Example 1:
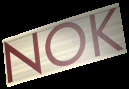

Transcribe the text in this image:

NOK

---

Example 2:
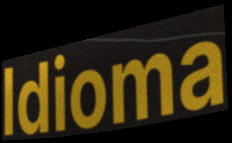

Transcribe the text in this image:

Idioma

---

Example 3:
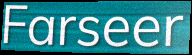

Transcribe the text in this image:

Farseer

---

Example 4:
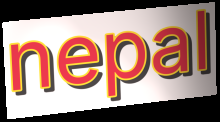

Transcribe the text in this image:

nepal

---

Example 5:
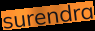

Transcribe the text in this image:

surendra